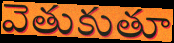
వెతుకుతూ